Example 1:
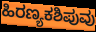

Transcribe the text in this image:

ಹಿರಣ್ಯಕಶಿಪುವು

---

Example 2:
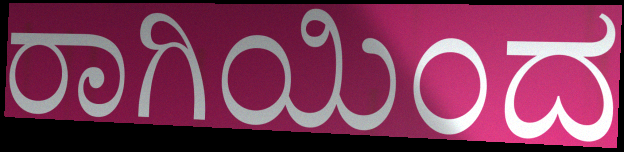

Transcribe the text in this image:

ರಾಗಿಯಿಂದ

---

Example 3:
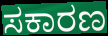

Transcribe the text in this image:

ಸಕಾರಣ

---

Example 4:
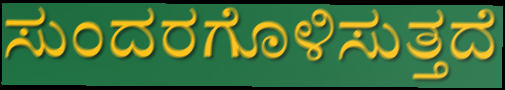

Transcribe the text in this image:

ಸುಂದರಗೊಳಿಸುತ್ತದೆ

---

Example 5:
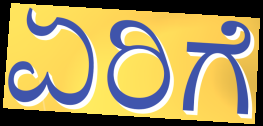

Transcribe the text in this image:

ಏರಿಗೆ